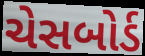
ચેસબોર્ડ